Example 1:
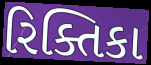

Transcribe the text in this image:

રિક્તિકા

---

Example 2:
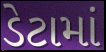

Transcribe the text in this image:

ડેટામાં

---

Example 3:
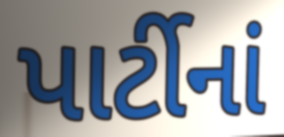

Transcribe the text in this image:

પાર્ટીનાં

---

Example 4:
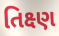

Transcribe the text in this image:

તિક્ષ્ણ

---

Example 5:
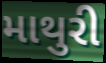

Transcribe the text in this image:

માથુરી